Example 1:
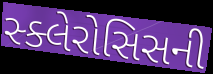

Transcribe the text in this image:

સ્ક્લેરોસિસની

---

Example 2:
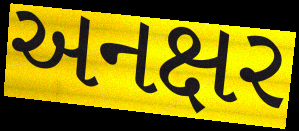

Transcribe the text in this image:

અનક્ષર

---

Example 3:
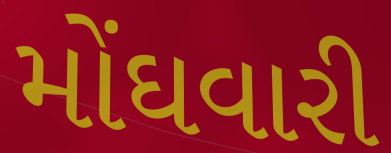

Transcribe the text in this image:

મોંઘવારી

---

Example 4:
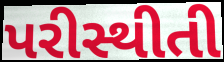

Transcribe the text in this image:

પરીસ્થીતી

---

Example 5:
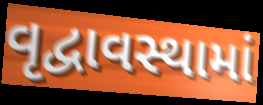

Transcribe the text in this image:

વૃદ્વાવસ્થામાં